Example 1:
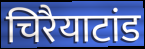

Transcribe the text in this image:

चिरैयाटांड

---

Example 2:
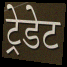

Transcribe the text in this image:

ट्रेडेट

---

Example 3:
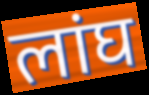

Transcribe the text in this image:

लांघ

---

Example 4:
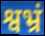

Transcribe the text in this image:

श्वभ्रं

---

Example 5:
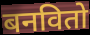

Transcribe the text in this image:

बनवितो